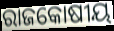
ରାଜକୋଷୀୟ